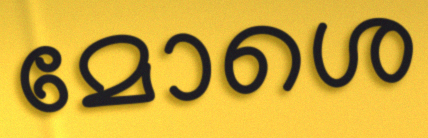
മോശെ